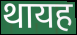
थायह